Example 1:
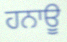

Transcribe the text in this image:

ਹਨਾਊ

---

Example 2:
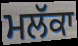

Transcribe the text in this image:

ਮਲੱਕਾ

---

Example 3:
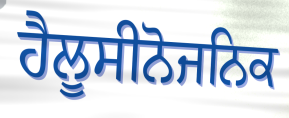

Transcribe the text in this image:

ਹੈਲੂਸੀਨੋਜਨਿਕ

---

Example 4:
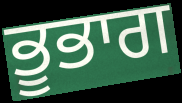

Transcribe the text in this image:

ਭੂਭਾਗ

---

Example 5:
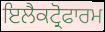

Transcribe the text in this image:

ਇਲੈਕਟ੍ਰੋਫਾਰਮ